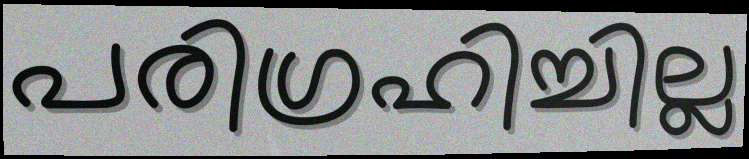
പരിഗ്രഹിച്ചില്ല